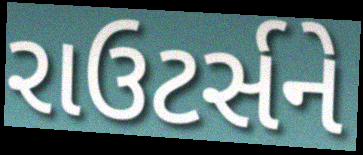
રાઉટર્સને